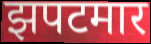
झपटमार